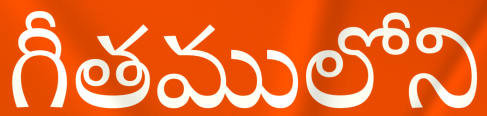
గీతములోని